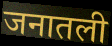
जनातली